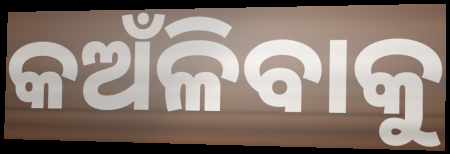
କଅଁଳିବାକୁ